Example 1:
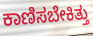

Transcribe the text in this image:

ಕಾಣಿಸಬೇಕಿತ್ತು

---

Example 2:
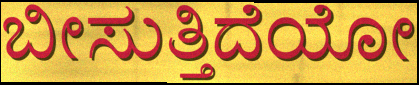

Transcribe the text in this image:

ಬೀಸುತ್ತಿದೆಯೋ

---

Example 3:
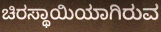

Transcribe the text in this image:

ಚಿರಸ್ಥಾಯಿಯಾಗಿರುವ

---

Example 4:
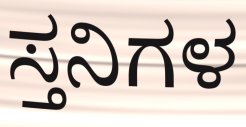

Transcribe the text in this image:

ಸ್ತನಿಗಳ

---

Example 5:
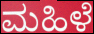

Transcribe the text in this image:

ಮಹಿಳೆ